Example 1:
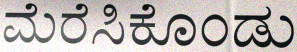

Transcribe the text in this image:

ಮೆರೆಸಿಕೊಂಡು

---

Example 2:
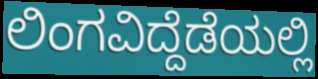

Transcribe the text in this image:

ಲಿಂಗವಿದ್ದೆಡೆಯಲ್ಲಿ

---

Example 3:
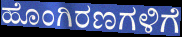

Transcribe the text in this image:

ಹೊಂಗಿರಣಗಳಿಗೆ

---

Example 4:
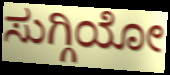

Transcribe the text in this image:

ಸುಗ್ಗಿಯೋ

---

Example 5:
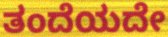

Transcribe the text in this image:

ತಂದೆಯದೇ